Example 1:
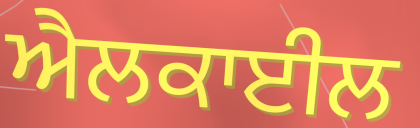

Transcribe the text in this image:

ਐਲਕਾਈਲ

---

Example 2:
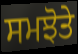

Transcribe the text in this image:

ਸਮਝੋਤੇ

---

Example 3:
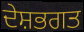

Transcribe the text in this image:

ਦੇਸ਼ਭਗਤ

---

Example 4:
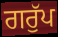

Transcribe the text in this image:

ਗਰੁੱਪ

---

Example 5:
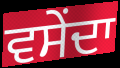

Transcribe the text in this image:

ਵਸੇਂਦਾ